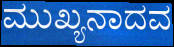
ಮುಖ್ಯನಾದವ